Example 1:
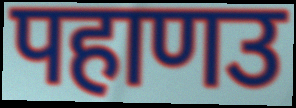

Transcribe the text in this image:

पहाणउ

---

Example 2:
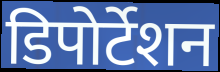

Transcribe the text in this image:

डिपोर्टेशन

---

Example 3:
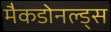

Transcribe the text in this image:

मैकडोनल्ड्स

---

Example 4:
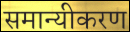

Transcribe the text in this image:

समान्यीकरण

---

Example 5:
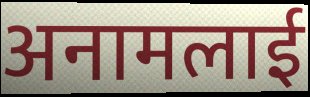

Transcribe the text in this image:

अनामलाई